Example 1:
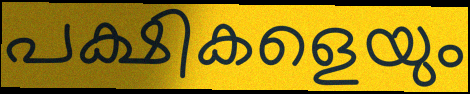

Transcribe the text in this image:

പക്ഷികളെയും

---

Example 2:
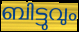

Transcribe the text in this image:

ബിട്ടുവും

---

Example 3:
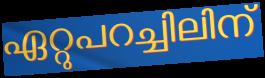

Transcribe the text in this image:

ഏറ്റുപറച്ചിലിന്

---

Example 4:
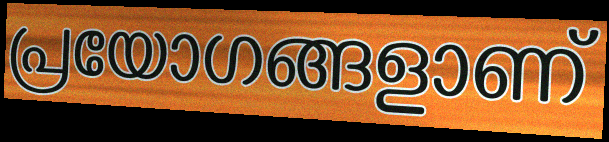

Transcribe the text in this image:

പ്രയോഗങ്ങളാണ്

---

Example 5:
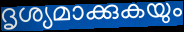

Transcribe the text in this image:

ദൃശ്യമാക്കുകയും